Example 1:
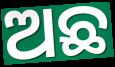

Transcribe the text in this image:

ଅଛ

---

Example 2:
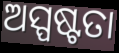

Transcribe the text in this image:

ଅସ୍ପଷ୍ଟତା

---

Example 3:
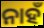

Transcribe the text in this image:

ନାହଁ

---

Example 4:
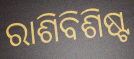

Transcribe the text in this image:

ରାଶିବିଶିଷ୍ଟ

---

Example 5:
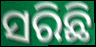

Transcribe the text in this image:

ସରିଛି